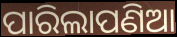
ପାରିଲାପଣିଆ